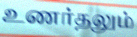
உணர்தலும்